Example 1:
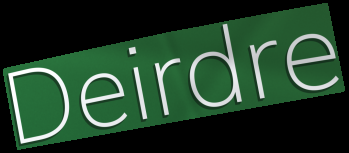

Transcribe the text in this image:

Deirdre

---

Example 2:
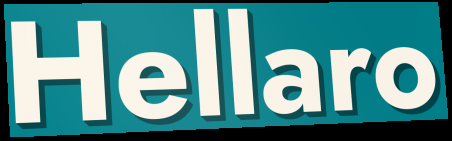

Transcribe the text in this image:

Hellaro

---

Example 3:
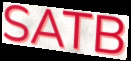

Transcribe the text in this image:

SATB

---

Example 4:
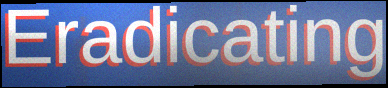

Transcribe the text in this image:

Eradicating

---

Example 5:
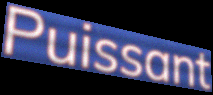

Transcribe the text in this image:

Puissant